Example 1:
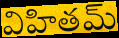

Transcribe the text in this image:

విహితమ్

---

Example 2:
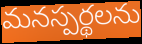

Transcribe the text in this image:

మనస్పర్థలను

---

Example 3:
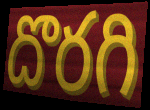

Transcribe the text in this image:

దొరగి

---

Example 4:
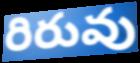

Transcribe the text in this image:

రిరువు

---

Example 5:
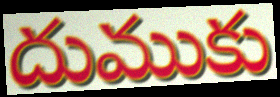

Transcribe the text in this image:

దుముకు